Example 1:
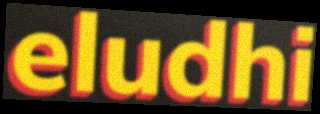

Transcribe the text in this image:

eludhi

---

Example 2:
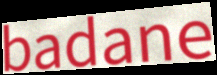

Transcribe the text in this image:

badane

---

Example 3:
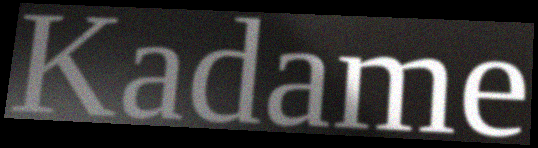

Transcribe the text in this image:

Kadame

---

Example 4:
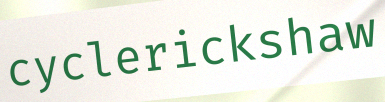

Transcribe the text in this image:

cyclerickshaw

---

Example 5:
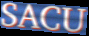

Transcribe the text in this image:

SACU